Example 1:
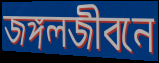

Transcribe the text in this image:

জঙ্গলজীবনে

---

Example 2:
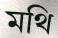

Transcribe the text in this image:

মথি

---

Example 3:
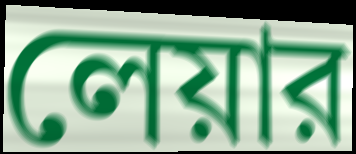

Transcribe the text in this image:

লেয়ার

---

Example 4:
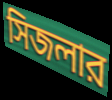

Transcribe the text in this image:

সিজলার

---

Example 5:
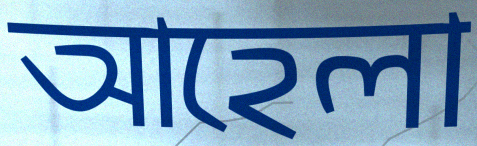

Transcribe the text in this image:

আহেলা